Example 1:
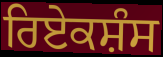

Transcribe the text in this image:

ਰਿਏਕਸ਼ੰਸ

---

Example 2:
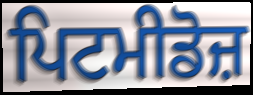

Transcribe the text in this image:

ਪਿਟਮੀਡੋਜ਼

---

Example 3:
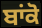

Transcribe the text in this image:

ਬਾਂਕੋ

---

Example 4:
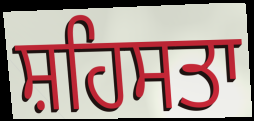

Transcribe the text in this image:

ਸ਼ਹਿਸਤਾ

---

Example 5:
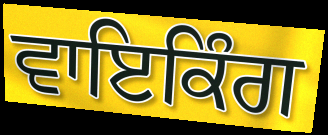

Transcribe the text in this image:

ਵਾਇਕਿੰਗ